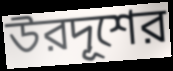
উরদূশের